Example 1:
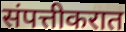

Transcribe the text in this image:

संपत्तीकरात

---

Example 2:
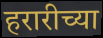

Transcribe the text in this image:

हरारीच्या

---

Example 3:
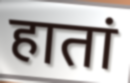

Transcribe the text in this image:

हातां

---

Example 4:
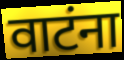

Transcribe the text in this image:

वाटंना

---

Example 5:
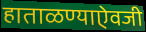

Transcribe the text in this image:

हाताळण्याऐवजी